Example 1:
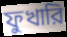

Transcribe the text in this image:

ফুখারি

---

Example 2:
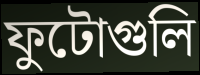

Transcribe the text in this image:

ফুটোগুলি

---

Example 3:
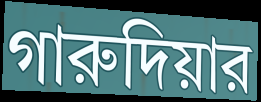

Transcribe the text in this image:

গারুদিয়ার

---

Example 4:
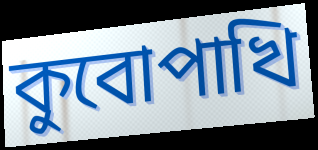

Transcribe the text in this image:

কুবোপাখি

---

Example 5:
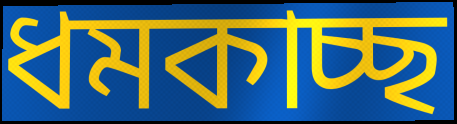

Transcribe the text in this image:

ধমকাচ্ছ